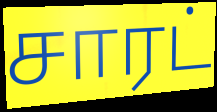
சாரட்